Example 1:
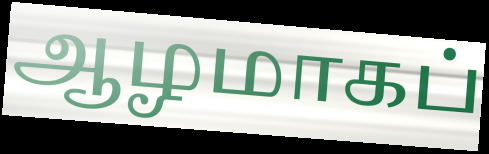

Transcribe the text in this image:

ஆழமாகப்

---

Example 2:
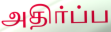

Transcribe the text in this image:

அதிர்ப்ப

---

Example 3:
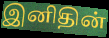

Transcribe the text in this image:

இனிதின்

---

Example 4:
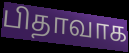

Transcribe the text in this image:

பிதாவாக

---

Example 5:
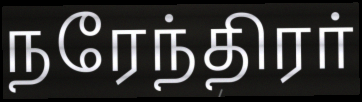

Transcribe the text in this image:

நரேந்திரர்